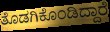
ತೊಡಗಿಕೊಂಡಿದ್ದಾರೆ